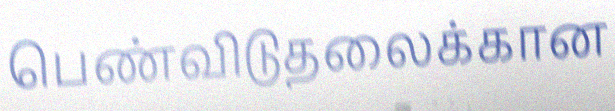
பெண்விடுதலைக்கான